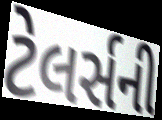
ટેલર્સની